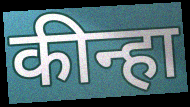
कीन्हा